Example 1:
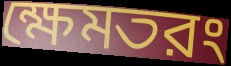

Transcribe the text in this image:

ক্ষেমতরং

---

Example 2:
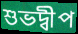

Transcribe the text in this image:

শুভদ্বীপ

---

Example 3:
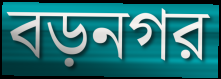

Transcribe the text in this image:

বড়নগর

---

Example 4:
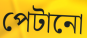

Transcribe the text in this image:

পেটানো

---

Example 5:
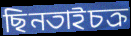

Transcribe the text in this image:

ছিনতাইচক্র